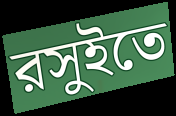
রসুইতে